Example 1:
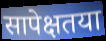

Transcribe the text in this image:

सापेक्षतया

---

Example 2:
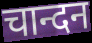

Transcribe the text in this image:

चान्दन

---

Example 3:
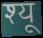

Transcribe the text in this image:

श्यू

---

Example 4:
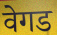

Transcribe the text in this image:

वेगड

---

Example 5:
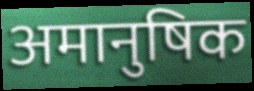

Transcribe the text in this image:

अमानुषिक